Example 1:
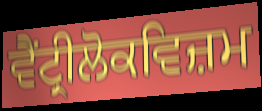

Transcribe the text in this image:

ਵੈਂਟ੍ਰੀਲੋਕਵਿਜ਼ਮ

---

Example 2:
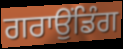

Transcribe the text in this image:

ਗਰਾਉਂਡਿੰਗ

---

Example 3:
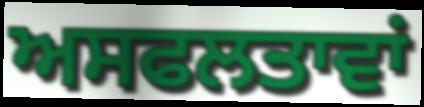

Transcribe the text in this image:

ਅਸਫਲਤਾਵਾਂ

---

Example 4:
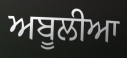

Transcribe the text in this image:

ਅਬੂਲੀਆ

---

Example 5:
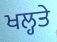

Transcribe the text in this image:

ਖਲ੍ਹਤੇ